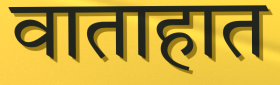
वाताहात